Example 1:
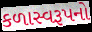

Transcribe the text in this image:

કળાસ્વરૂપનો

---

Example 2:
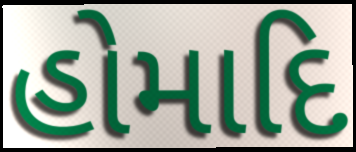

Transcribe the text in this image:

હોમાદિ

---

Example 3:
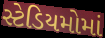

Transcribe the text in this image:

સ્ટેડિયમોમાં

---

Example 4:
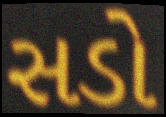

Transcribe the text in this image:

સડો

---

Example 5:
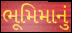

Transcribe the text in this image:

ભૂમિમાનું